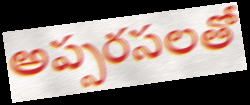
అప్సరసలతో